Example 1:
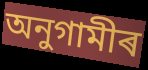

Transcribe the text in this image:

অনুগামীৰ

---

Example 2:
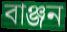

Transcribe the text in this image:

বাঞ্জন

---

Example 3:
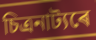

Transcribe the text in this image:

চিত্ৰনাট্যৰে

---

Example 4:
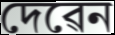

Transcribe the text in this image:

দেৱেন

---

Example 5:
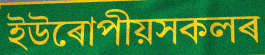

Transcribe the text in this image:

ইউৰোপীয়সকলৰ